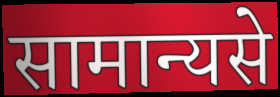
सामान्यसे